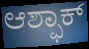
ಆಶ್ಫಾಕ್